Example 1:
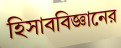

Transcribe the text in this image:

হিসাববিজ্ঞানের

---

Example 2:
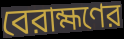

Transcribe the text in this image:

বেরাহ্মণের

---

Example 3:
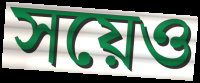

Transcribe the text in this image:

সয়েও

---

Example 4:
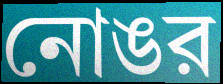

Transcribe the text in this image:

নোঙর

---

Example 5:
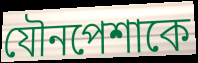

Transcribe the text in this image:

যৌনপেশাকে